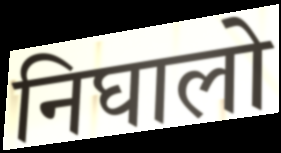
निघालो